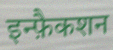
इन्फ़ैकशन